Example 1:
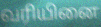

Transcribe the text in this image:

வரியினை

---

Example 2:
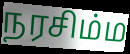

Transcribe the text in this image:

நரசிம்ம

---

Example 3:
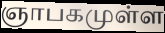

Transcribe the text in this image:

ஞாபகமுள்ள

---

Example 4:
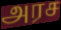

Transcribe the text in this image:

அரச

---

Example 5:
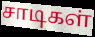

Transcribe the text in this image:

சாடிகள்